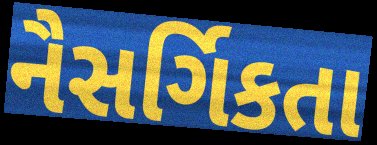
નૈસર્ગિકતા